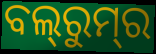
ବଲ୍‍ରୁମ୍‌ର